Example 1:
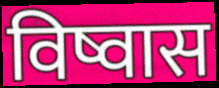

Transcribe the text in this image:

विष्वास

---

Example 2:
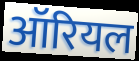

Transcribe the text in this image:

ऑरियल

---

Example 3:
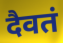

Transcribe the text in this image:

दैवतं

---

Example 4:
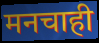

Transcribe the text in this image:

मनचाही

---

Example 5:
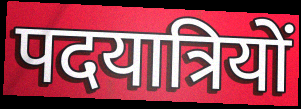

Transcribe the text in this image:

पदयात्रियों